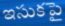
ఇసుకపై